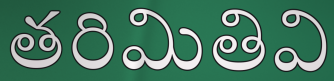
తరిమితివి